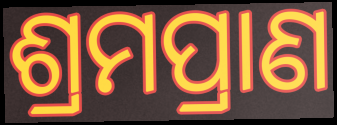
ଶ୍ରମପ୍ରାଣ